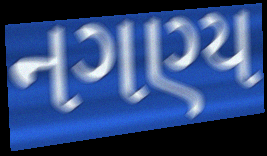
નગણ્ય